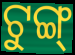
ଟୁଙ୍ଗ୍